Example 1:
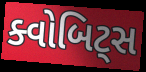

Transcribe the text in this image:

ક્વોબિટ્સ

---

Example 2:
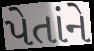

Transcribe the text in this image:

પેતાંને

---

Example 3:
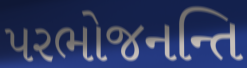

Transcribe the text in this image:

પરભોજનન્તિ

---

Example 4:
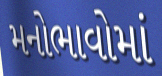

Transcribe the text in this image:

મનોભાવોમાં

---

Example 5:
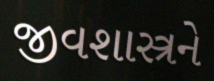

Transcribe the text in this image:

જીવશાસ્ત્રને